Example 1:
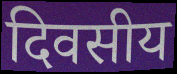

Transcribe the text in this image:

दिवसीय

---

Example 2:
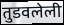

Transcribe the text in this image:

तुडवलेली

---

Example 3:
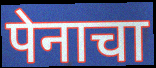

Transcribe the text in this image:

पेनाचा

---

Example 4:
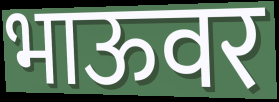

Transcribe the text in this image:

भाऊवर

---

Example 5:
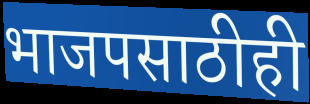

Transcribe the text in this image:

भाजपसाठीही